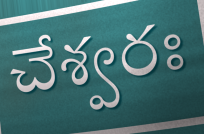
చేశ్వరః